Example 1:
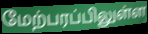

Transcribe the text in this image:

மேற்பரப்பிலுள்ள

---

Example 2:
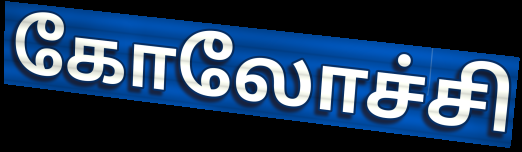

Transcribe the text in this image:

கோலோச்சி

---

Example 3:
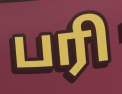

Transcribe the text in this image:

பரி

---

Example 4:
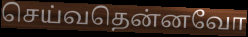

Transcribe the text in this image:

செய்வதென்னவோ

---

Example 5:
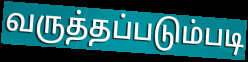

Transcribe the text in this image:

வருத்தப்படும்படி